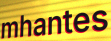
mhantes